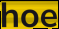
hoe